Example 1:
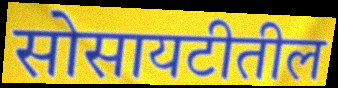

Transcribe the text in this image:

सोसायटीतील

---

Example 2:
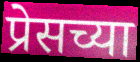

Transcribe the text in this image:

प्रेसच्या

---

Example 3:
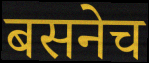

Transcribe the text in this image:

बसनेच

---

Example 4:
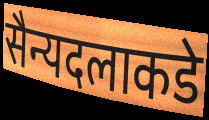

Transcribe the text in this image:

सैन्यदलाकडे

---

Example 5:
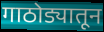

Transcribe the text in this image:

गाठोड्यातून